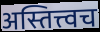
अस्तित्त्वच